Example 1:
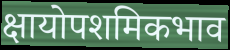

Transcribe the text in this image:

क्षायोपशमिकभाव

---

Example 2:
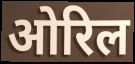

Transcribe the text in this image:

ओरिल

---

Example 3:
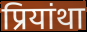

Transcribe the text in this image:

प्रियांथा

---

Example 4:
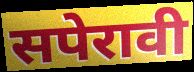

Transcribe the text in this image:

सपेरावी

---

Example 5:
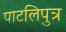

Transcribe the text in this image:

पाटलिपुत्र